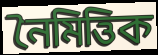
নৈমিত্তিক